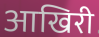
आखिरी